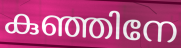
കുഞ്ഞിനേ